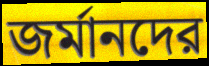
জর্মানদের